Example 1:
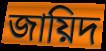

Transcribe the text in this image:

জায়িদ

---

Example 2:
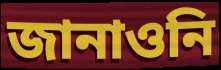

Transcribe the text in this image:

জানাওনি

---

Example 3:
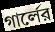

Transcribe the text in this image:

গার্লের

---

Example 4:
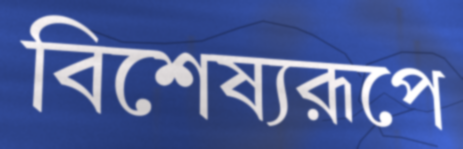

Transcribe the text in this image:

বিশেষ্যরূপে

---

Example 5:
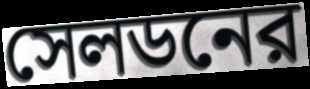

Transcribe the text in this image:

সেলডনের